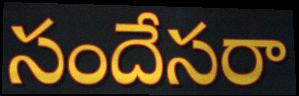
సందేసరా